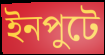
ইনপুটে